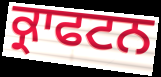
ਕ੍ਰਾਫਟਨ